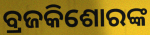
ବ୍ରଜକିଶୋରଙ୍କ